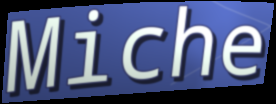
Miche